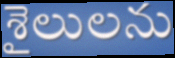
శైలులను